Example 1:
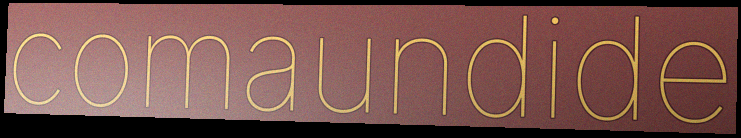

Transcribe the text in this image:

comaundide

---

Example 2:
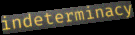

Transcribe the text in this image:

indeterminacy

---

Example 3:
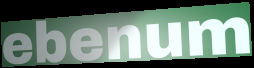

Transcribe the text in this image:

ebenum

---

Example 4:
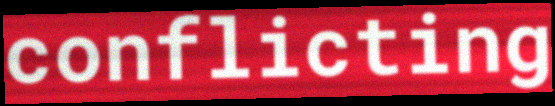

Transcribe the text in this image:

conflicting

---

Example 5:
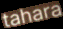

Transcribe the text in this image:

tahara